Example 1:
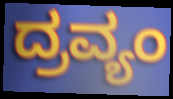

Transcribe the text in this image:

ದ್ರವ್ಯಂ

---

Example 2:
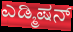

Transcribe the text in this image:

ಎಡ್ಮಿಷನ್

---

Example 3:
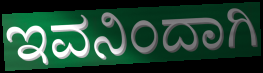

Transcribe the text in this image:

ಇವನಿಂದಾಗಿ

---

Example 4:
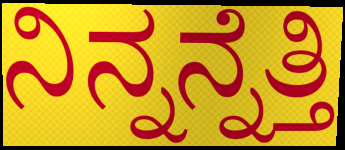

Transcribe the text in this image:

ನಿನ್ನನ್ನೆತ್ತಿ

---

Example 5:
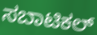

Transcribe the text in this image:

ಸಬಾಟಿಕಲ್